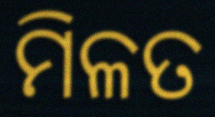
ମିଳତ